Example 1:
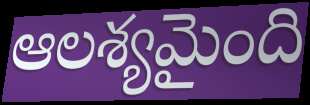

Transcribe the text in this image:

ఆలశ్యమైంది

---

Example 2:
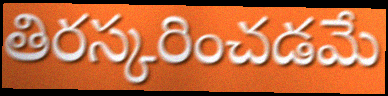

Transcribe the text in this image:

తిరస్కరించడమే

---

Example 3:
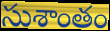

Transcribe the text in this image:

సుశాంతం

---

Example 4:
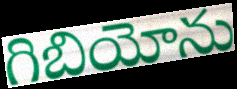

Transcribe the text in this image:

గిబియోను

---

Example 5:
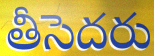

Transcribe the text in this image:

తీసెదరు